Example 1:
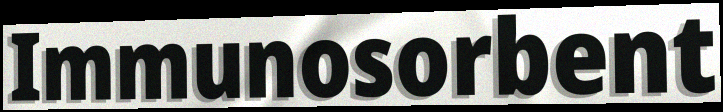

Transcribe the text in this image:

Immunosorbent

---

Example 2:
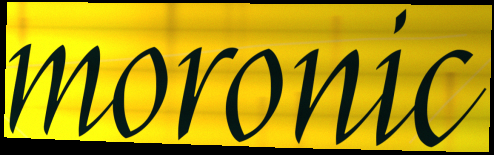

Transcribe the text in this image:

moronic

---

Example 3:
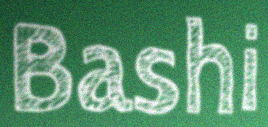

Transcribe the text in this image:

Bashi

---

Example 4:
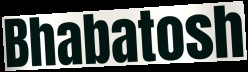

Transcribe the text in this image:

Bhabatosh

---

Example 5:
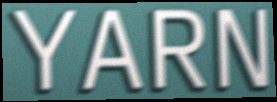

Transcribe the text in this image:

YARN